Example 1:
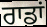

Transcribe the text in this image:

ਰਾਡਾਂ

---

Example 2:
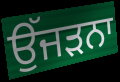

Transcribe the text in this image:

ਉੱਜੜਨਾ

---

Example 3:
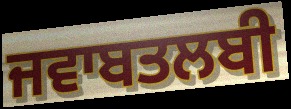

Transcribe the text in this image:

ਜਵਾਬਤਲਬੀ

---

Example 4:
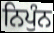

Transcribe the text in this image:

ਨਿਪੁੰਨ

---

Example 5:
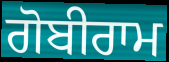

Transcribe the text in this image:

ਗੋਬੀਰਾਮ